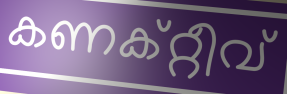
കണക്റ്റീവ്